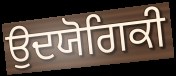
ਉਦਯੋਗਿਕੀ